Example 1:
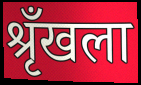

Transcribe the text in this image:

श्रृँखला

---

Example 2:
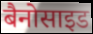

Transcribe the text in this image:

बैनोसाइड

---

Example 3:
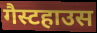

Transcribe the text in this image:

गैस्टहाउस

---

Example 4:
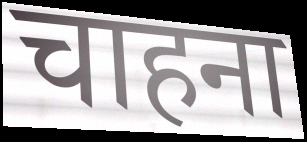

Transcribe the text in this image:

चाहना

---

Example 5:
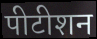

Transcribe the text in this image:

पीटीशन